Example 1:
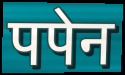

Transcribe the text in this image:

पपेन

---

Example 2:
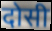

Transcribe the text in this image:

दोसी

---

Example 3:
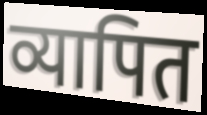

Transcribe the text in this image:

व्यापित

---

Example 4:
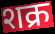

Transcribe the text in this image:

शक्र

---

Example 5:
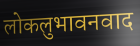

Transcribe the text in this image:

लोकलुभावनवाद